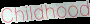
Childhood